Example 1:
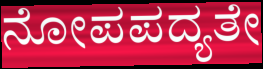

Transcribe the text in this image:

ನೋಪಪದ್ಯತೇ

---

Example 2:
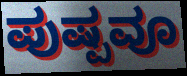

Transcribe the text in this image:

ಪುಷ್ಪವೂ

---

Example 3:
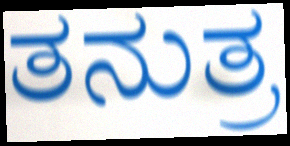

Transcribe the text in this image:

ತನುತ್ರ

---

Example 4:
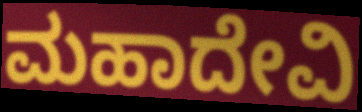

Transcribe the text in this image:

ಮಹಾದೇವಿ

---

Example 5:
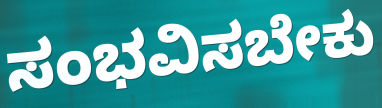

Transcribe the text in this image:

ಸಂಭವಿಸಬೇಕು